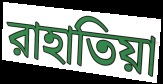
রাহাতিয়া